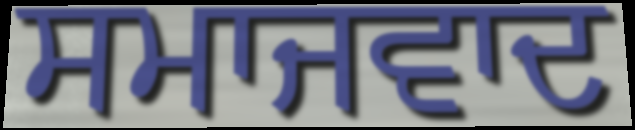
ਸਮਾਜਵਾਦ